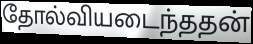
தோல்வியடைந்ததன்